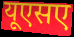
यूएसए